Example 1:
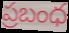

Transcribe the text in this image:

ప్రబంధ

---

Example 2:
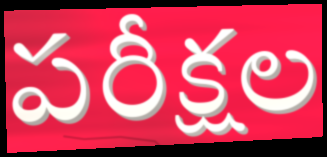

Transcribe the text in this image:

పరీక్షల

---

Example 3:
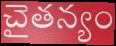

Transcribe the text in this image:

చైతన్యం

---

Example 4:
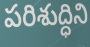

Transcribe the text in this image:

పరిశుద్ధిని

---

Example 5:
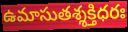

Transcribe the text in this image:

ఉమాసుతశ్శక్తిధరః